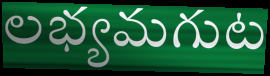
లభ్యమగుట